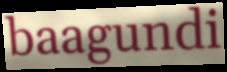
baagundi